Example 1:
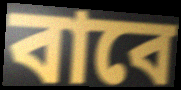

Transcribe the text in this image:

বাবে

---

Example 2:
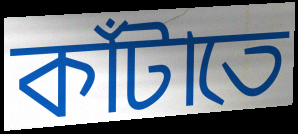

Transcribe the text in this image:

কাঁটাতে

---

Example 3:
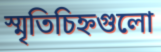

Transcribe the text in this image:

স্মৃতিচিহ্নগুলো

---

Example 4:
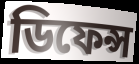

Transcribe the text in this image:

ডিফেন্স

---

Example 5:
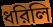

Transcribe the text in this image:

ধরিলি